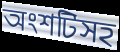
অংশটিসহ